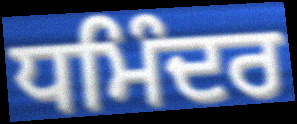
ਧਮਿੰਦਰ